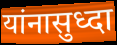
यांनासुध्दा